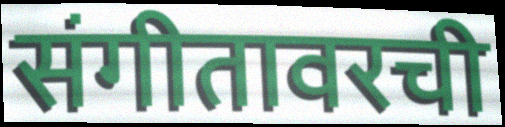
संगीतावरची